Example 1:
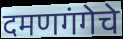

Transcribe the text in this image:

दमणगंगेचे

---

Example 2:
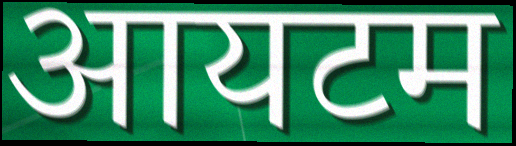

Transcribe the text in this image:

आयटम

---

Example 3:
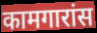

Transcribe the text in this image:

कामगारांस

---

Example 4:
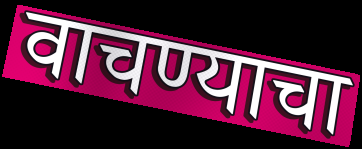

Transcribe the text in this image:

वाचण्याचा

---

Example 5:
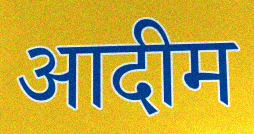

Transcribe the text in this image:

आदीम